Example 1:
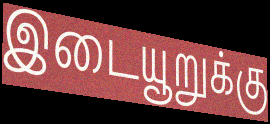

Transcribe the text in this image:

இடையூறுக்கு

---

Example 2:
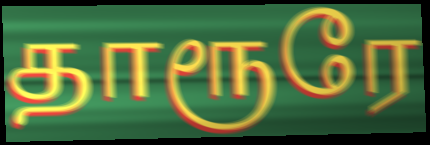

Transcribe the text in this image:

தாரூரே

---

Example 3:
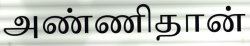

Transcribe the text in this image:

அண்ணிதான்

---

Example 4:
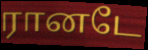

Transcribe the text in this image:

ரானடே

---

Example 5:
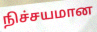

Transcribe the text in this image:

நிச்சயமான